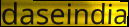
daseindia